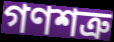
গণশত্রু